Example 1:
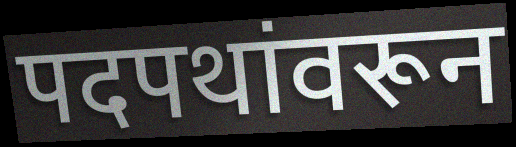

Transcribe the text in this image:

पदपथांवरून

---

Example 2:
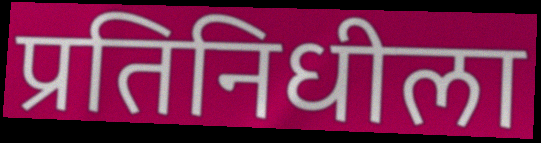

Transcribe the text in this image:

प्रतिनिधीला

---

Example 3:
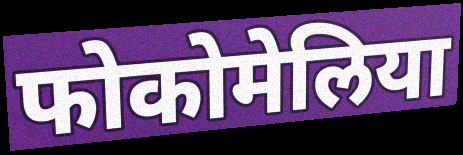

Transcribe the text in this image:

फोकोमेलिया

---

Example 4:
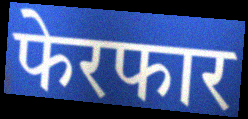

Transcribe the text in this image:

फेरफार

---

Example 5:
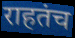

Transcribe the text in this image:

राहतंच